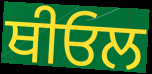
ਥੀਓਲ